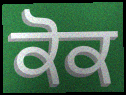
ਕੋਕ